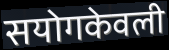
सयोगकेवली